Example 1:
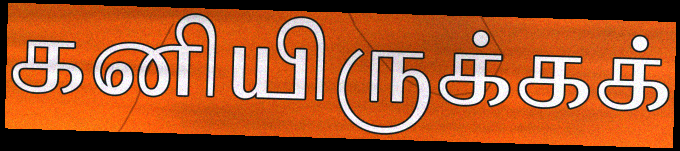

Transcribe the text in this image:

கனியிருக்கக்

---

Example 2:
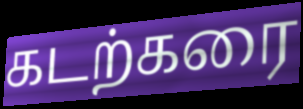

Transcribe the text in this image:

கடற்கரை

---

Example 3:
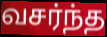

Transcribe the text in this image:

வசர்ந்த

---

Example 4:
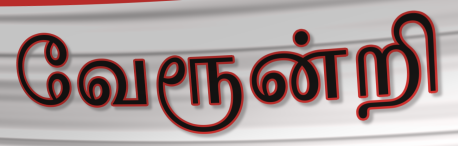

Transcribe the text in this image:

வேரூன்றி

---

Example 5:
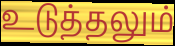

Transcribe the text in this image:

உடுத்தலும்